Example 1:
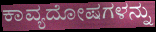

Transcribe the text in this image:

ಕಾವ್ಯದೋಷಗಳನ್ನು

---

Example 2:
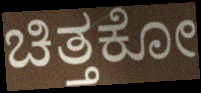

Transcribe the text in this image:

ಚಿತ್ತಕೋ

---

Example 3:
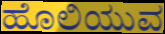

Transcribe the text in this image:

ಹೊಲಿಯುವ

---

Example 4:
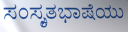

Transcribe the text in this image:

ಸಂಸ್ಕೃತಭಾಷೆಯು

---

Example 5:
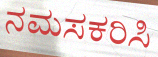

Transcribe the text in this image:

ನಮಸಕರಿಸಿ